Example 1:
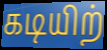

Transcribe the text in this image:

கடியிற்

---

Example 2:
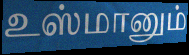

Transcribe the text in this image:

உஸ்மானும்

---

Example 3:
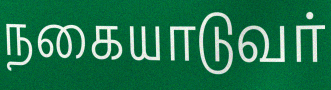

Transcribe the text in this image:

நகையாடுவர்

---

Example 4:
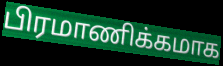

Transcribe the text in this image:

பிரமாணிக்கமாக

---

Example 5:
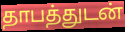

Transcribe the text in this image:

தாபத்துடன்